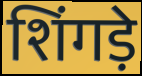
शिंगड़े